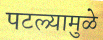
पटल्यामुळे